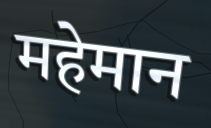
महेमान